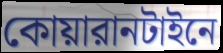
কোয়ারানটাইনে